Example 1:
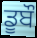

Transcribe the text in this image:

ਡੂਬੌ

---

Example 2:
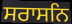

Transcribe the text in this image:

ਸਰਾਸਨਿ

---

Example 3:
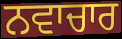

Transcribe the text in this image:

ਨਵਾਚਾਰ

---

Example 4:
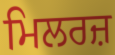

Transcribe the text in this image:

ਮਿਲਰਜ਼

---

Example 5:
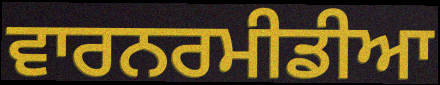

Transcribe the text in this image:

ਵਾਰਨਰਮੀਡੀਆ